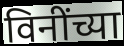
विनींच्या